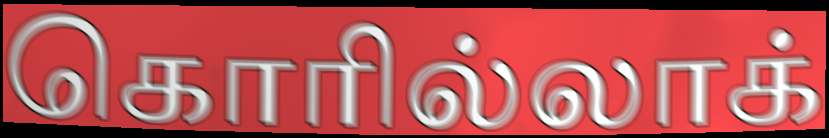
கொரில்லாக்